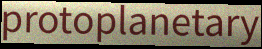
protoplanetary